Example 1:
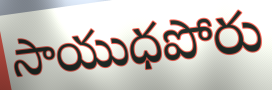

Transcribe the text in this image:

సాయుధపోరు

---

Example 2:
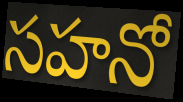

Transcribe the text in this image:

సహనో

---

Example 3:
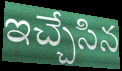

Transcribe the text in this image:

ఇచ్చేసిన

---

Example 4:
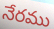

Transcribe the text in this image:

నేరము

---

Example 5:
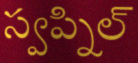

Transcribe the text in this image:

స్వప్నిల్